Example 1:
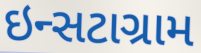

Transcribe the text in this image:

ઇન્સટાગ્રામ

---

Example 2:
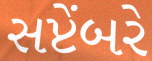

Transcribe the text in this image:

સપ્ટેંબરે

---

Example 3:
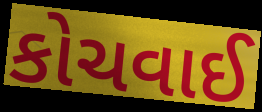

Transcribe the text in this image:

કોચવાઈ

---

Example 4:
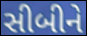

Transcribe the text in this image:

સીબીને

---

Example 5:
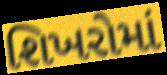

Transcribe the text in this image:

શિખરોમાં